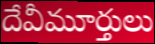
దేవీమూర్తులు